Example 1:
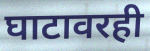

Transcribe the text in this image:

घाटावरही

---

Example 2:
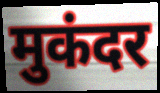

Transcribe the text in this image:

मुकंदर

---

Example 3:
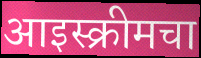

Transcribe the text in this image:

आइस्क्रीमचा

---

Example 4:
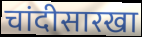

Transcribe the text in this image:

चांदीसारखा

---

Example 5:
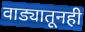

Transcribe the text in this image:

वाड्यातूनही